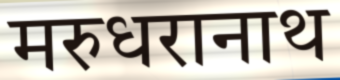
मरुधरानाथ